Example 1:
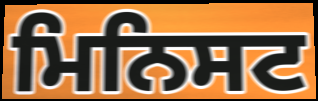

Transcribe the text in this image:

ਮਿਨਿਸਟ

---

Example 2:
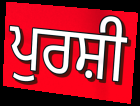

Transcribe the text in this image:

ਪੁਰਸ਼ੀ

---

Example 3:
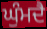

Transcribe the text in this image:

ਘੁੰਮਦੈ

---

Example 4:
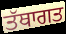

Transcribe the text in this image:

ਤੱਥਾਗਤ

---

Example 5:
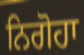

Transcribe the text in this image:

ਨਿਗੋਹਾ